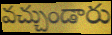
వచ్చుండారు